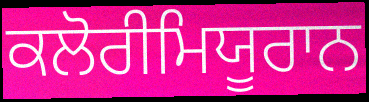
ਕਲੋਰੀਮਿਯੂਰਾਨ